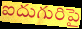
ఐదుగురిపై